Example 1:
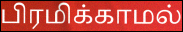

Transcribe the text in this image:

பிரமிக்காமல்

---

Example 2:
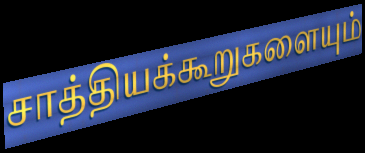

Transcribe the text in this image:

சாத்தியக்கூறுகளையும்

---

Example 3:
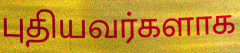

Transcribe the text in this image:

புதியவர்களாக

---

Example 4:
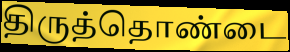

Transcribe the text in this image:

திருத்தொண்டை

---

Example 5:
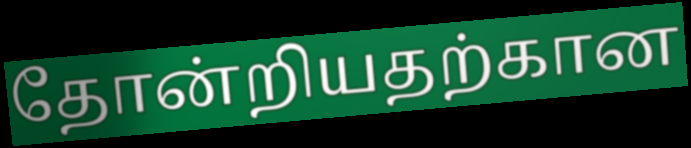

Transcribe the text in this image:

தோன்றியதற்கான